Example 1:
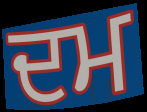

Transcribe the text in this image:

ਦਮ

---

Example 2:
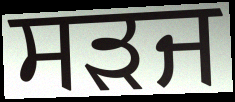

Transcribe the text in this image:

ਸੜਜ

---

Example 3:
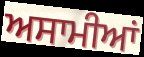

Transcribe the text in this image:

ਅਸਾਮੀਆਂ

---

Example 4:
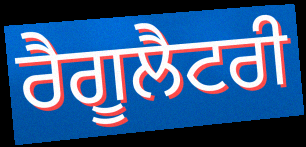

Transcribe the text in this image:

ਰੈਗੂਲੈਟਰੀ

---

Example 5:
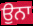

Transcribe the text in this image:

ਉਨਾ